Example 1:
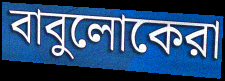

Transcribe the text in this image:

বাবুলোকেরা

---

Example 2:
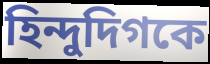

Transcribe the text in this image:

হিন্দুদিগকে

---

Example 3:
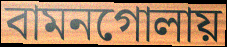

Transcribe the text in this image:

বামনগোলায়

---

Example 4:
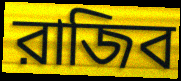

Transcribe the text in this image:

রাজিব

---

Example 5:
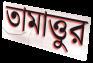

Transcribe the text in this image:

তামাত্তুর